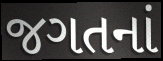
જગતનાં